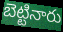
బెట్టినారు